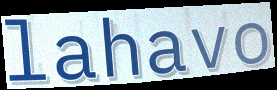
lahavo